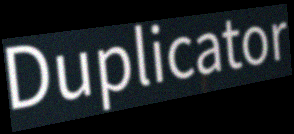
Duplicator